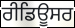
ਰੀਡਿਊਸਰ